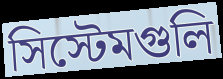
সিস্টেমগুলি